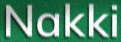
Nakki